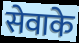
सेवाके